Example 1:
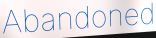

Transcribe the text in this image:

Abandoned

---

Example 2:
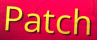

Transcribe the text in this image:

Patch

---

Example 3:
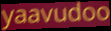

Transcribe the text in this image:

yaavudoo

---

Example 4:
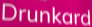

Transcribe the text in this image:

Drunkard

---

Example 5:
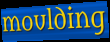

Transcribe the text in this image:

moulding